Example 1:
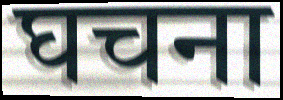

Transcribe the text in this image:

घचना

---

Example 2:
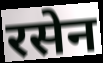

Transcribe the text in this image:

रसेन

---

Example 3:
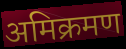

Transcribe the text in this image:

अमिक्रमण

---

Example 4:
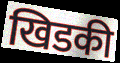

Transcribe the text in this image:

खिडकी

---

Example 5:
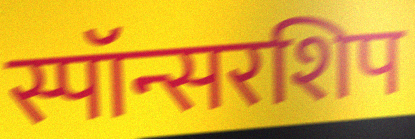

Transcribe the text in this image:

स्पॉन्सरशिप